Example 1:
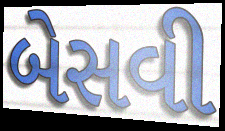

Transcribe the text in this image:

બેસવી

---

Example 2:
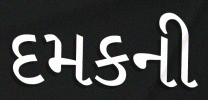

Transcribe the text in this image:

દમકની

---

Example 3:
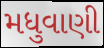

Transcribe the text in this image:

મધુવાણી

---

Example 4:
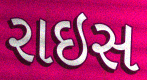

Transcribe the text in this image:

રાઇસ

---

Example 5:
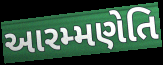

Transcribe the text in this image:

આરમ્મણેતિ